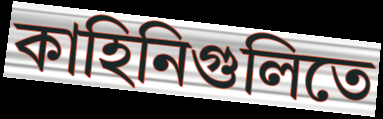
কাহিনিগুলিতে